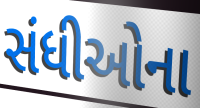
સંધીઓના